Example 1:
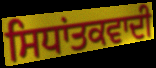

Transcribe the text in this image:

ਸਿਧਾਂਤਕਵਾਦੀ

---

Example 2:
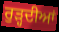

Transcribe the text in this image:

ਰੁੜ੍ਹਦੀਆਂ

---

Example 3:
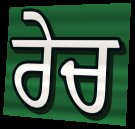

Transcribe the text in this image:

ਰੇਚ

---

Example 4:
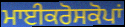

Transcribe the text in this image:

ਮਾਈਕਰੋਸਕੋਪਾਂ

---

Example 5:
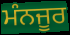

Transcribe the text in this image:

ਮੰਨਜੂਰ